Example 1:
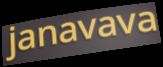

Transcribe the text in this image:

janavava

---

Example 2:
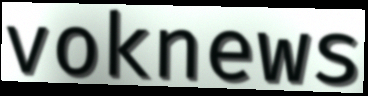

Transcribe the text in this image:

voknews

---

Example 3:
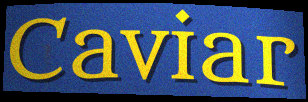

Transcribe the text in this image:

Caviar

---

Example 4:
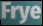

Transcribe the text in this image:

Frye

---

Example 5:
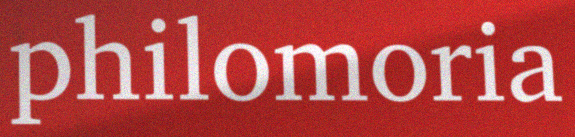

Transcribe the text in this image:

philomoria